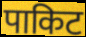
पाकिट